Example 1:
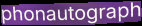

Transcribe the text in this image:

phonautograph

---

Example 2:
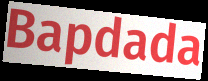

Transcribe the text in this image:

Bapdada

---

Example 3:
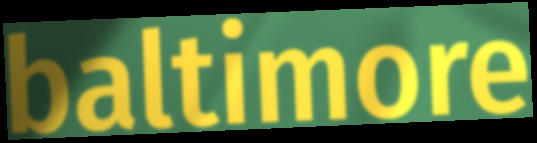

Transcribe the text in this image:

baltimore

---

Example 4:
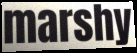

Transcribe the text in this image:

marshy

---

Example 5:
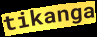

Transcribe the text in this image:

tikanga